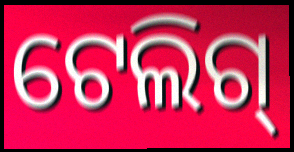
ଟେଲିଗ୍